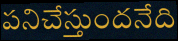
పనిచేస్తుందనేది